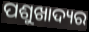
ପଶୁଖାଦ୍ୟର